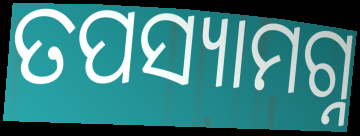
ତପସ୍ୟାମଗ୍ନ